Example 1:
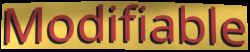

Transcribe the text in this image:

Modifiable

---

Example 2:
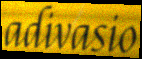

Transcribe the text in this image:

adivasio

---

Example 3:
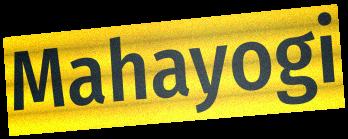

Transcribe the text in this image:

Mahayogi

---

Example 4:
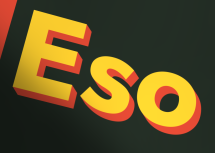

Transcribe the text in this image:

Eso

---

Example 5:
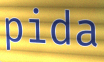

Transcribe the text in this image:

pida